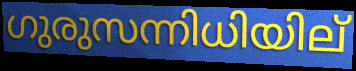
ഗുരുസന്നിധിയില്